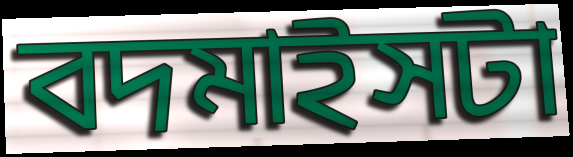
বদমাইসটা